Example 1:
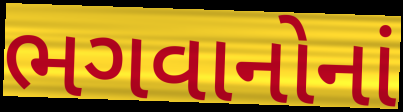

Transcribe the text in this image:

ભગવાનોનાં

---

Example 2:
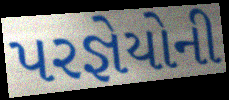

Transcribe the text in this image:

પરજ્ઞેયોની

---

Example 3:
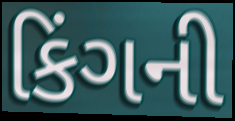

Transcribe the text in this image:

કિંગની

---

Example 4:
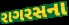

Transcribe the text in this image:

રાગરસના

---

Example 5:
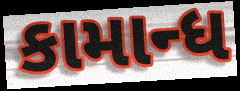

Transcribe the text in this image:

કામાન્ધ